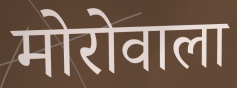
मोरोवाला